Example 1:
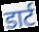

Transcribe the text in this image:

डार्ट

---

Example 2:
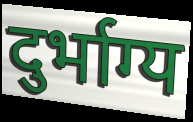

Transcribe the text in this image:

दुर्भाग्य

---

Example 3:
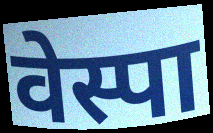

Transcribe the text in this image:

वेस्पा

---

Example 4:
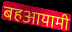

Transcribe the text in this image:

बहआयामी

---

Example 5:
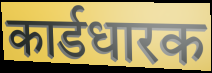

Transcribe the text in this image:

कार्डधारक